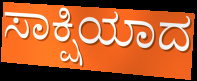
ಸಾಕ್ಷಿಯಾದ